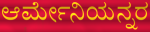
ಆರ್ಮೇನಿಯನ್ನರ